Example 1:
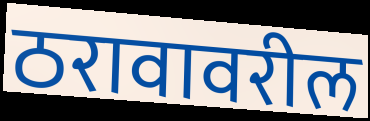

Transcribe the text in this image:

ठरावावरील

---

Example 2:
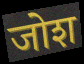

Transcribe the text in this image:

जोश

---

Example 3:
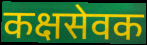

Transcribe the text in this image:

कक्षसेवक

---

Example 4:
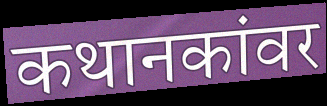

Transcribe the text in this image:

कथानकांवर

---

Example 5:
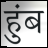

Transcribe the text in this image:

हुंब